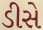
ડીસે